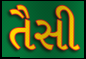
તૈસી